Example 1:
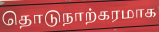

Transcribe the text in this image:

தொடுநாற்கரமாக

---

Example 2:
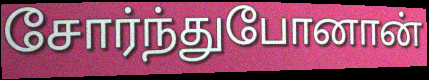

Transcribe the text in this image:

சோர்ந்துபோனான்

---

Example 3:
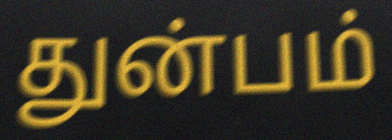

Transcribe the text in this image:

துன்பம்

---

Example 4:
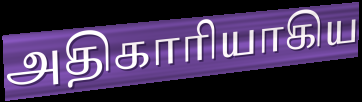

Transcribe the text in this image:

அதிகாரியாகிய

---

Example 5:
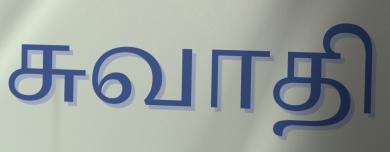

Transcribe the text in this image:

சுவாதி